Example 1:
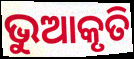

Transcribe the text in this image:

ଭୁଆକୃତି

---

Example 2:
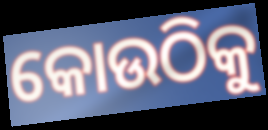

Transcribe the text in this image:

କୋଉଠିକୁ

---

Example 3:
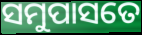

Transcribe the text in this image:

ସମୁପାସତେ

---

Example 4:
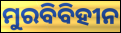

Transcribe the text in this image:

ମୁରବିବିହୀନ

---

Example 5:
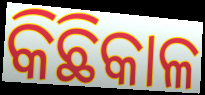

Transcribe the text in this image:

କିଛିକାଳ